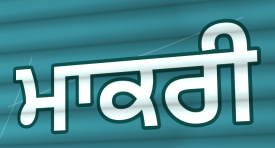
ਮਾਕਰੀ